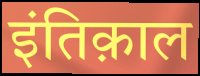
इंतिक़ाल